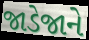
જાડેજાને